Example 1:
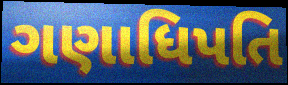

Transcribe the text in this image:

ગણાધિપતિ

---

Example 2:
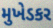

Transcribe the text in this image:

મુખેડકર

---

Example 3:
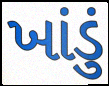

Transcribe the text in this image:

ખાંડું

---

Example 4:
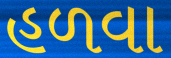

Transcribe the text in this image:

હળવા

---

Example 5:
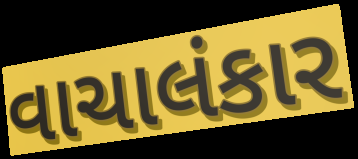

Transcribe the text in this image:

વાચાલંકાર